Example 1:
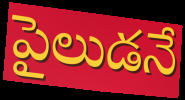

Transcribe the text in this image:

పైలుడనే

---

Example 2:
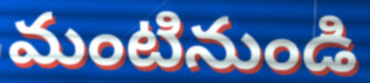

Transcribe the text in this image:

మంటినుండి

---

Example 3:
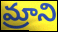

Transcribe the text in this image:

మ్రాని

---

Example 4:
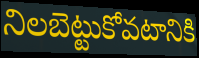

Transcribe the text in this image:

నిలబెట్టుకోవటానికి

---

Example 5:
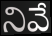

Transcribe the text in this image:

నివే